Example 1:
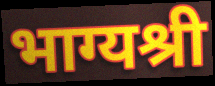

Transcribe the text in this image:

भाग्यश्री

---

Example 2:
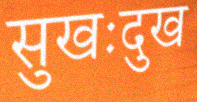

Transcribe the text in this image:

सुखःदुख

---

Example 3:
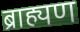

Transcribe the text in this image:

ब्राह्यण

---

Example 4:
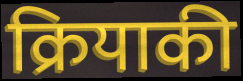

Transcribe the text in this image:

क्रियाकी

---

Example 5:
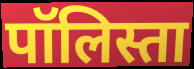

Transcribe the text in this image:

पॉलिस्ता